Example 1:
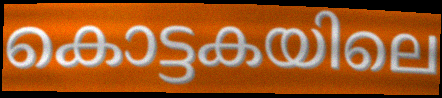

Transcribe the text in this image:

കൊട്ടകയിലെ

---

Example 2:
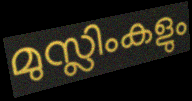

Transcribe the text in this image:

മുസ്ലിംകളും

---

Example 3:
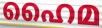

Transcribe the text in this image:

ഹൈമ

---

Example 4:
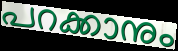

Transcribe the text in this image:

പറക്കാനും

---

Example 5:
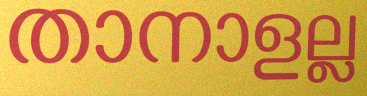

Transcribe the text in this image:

താനാളല്ല